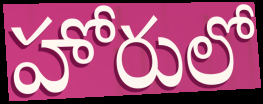
హోరులో